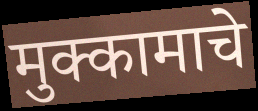
मुक्कामाचे